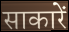
साकारें